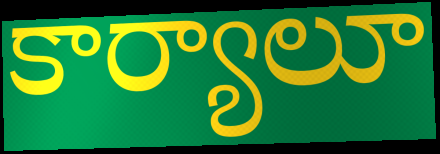
కార్యాలూ